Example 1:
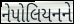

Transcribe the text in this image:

નેપોલિયનને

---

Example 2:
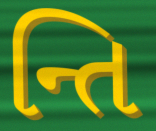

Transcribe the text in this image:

ન્તિ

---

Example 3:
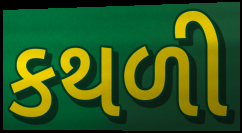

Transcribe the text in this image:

કથળી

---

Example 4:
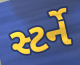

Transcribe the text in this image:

સ્ટર્ને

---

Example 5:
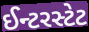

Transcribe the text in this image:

ઈન્ટરસ્ટેટ